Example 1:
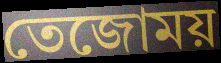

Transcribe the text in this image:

তেজোময়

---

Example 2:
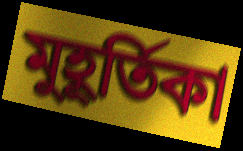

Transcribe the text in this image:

মুহূর্তিকা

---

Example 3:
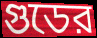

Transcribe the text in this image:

গুডের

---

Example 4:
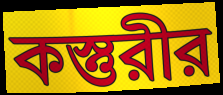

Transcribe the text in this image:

কস্তুরীর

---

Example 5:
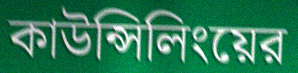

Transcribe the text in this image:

কাউন্সিলিংয়ের